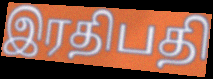
இரதிபதி